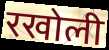
रखोली